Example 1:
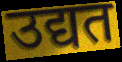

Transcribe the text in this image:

उद्यत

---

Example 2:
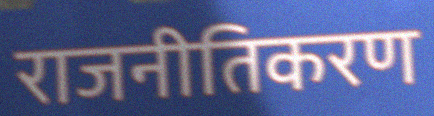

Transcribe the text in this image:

राजनीतिकरण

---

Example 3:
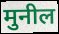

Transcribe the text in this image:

मुनील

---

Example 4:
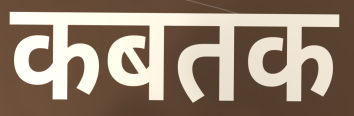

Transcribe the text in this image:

कबतक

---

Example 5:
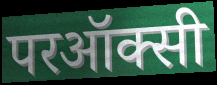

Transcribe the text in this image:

परऑक्सी